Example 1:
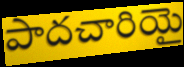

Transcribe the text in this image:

పాదచారియై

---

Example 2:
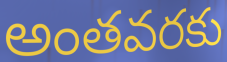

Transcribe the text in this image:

అంతవరకు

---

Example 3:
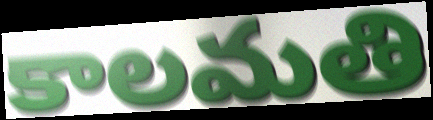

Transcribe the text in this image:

కాలమతి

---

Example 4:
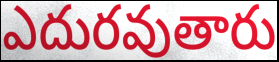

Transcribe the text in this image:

ఎదురవుతారు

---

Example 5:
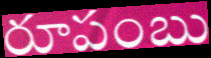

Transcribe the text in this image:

రూపంబు